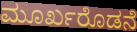
ಮೂರ್ಖರೊಡನೆ